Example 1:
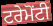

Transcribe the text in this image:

ਟਰੇਮੋਂਟੀ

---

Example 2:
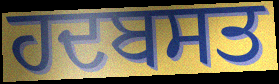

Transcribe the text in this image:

ਹਦਬਸਤ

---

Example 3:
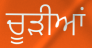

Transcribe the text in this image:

ਚੂੜੀਆਂ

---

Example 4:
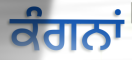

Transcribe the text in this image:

ਕੰਗਨਾਂ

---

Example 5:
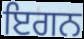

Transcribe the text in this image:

ਇਗਨ